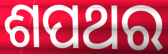
ଶପଥର